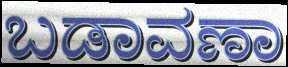
ಬಡಾವಣಾ